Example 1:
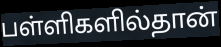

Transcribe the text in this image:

பள்ளிகளில்தான்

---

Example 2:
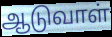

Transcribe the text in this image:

ஆடுவாள்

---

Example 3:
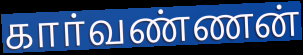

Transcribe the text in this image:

கார்வண்ணன்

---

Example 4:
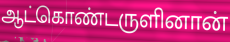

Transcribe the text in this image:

ஆட்கொண்டருளினான்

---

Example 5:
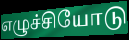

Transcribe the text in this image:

எழுச்சியோடு